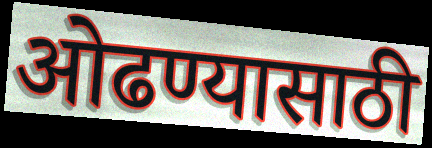
ओढण्यासाठी